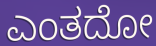
ಎಂತದೋ